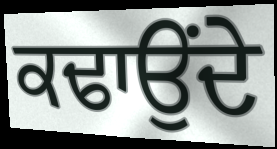
ਕਢਾਉਂਦੇ